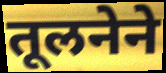
तूलनेने